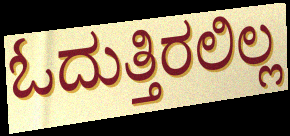
ಓದುತ್ತಿರಲಿಲ್ಲ